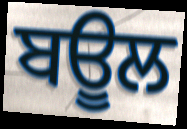
ਬਊਲ